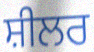
ਸ਼ੀਲਰ